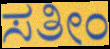
ಸತೀಂ